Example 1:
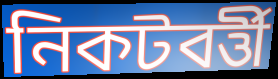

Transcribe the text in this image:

নিকটবর্ত্তী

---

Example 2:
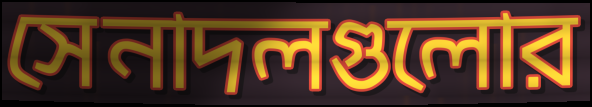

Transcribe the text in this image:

সেনাদলগুলোর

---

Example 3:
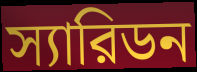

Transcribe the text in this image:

স্যারিডন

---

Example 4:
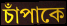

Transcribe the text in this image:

চাঁপাকে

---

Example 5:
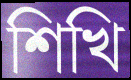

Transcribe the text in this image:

শিখি